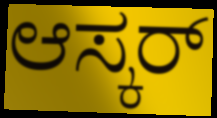
ಆಸ್ಕರ್